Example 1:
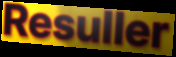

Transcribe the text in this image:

Resuller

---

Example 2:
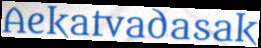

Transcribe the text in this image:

Aekatvadasak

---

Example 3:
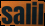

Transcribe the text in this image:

salil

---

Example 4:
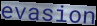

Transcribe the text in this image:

evasion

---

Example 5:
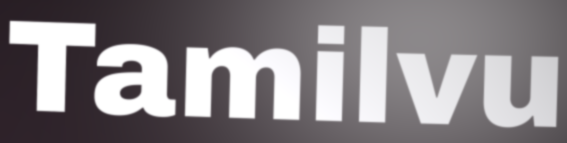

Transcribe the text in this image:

Tamilvu